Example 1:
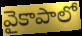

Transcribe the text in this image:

వైకాపాలో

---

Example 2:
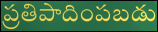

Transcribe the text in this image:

ప్రతిపాదింపబడు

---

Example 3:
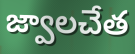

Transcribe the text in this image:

జ్వాలచేత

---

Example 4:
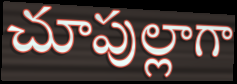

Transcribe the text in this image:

చూపుల్లాగా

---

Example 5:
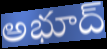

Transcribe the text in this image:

అభూద్